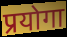
प्रयोगा